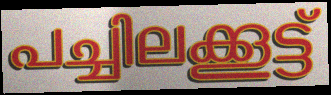
പച്ചിലക്കൂട്ട്